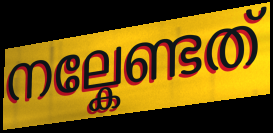
നല്കേണ്ടത്